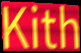
Kith